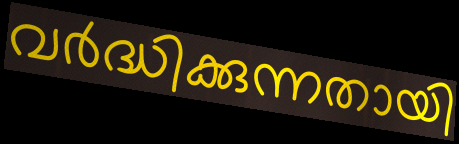
വർദ്ധിക്കുന്നതായി